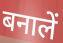
बनालें